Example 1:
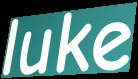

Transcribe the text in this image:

luke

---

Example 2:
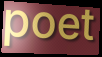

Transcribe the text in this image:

poet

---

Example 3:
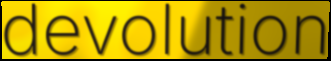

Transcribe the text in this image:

devolution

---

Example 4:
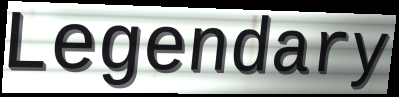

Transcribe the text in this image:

Legendary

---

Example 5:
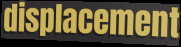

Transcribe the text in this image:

displacement